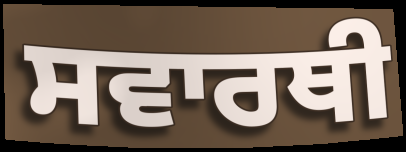
ਸਵਾਰਥੀ